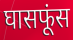
घासफूंस